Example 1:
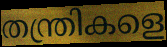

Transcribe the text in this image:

തന്ത്രികളെ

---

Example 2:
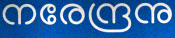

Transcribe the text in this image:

നരേന്ദ്രനു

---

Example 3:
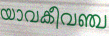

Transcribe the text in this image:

യാവകീവഞ്ച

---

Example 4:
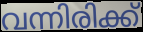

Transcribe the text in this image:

വന്നിരിക്ക്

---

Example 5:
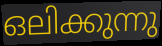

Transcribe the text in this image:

ഒലിക്കുന്നു